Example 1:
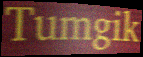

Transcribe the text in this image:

Tumgik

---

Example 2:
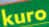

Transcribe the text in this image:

kuro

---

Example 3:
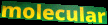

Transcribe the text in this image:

molecular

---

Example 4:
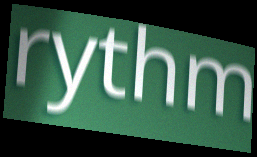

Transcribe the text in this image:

rythm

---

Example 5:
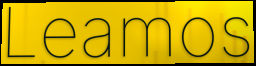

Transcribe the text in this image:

Leamos